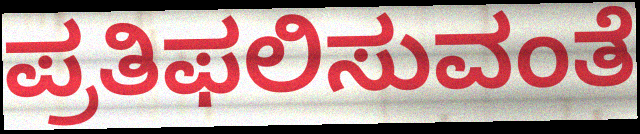
ಪ್ರತಿಫಲಿಸುವಂತೆ